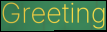
Greeting